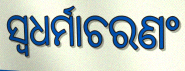
ସ୍ୱଧର୍ମାଚରଣଂ